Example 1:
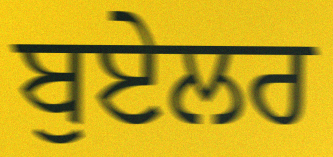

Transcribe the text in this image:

ਬੁਏਲਰ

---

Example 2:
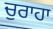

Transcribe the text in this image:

ਚੁਰਾਹਾ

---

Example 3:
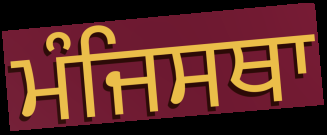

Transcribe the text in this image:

ਮੰਜਿਸਥਾ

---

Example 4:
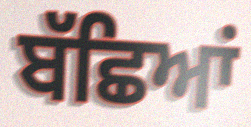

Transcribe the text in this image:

ਬੱਛਿਆਂ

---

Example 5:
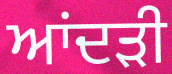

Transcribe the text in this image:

ਆਂਦੜੀ